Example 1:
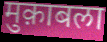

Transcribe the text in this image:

मुक़ाबला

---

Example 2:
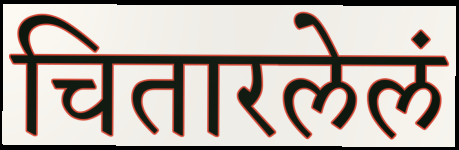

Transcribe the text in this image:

चितारलेलं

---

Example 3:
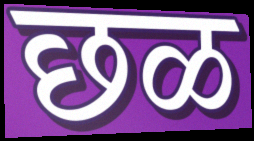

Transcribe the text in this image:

छळ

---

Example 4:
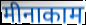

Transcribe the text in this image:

मीनाकाम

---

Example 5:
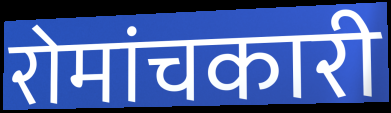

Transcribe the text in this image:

रोमांचकारी